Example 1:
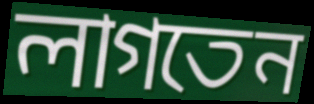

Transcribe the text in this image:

লাগতেন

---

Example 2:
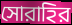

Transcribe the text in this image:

সোরাহির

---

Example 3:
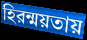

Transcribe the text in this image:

হিরন্ময়তায়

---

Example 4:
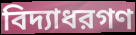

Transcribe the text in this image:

বিদ্যাধরগণ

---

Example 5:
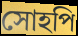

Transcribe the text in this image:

সোহপি